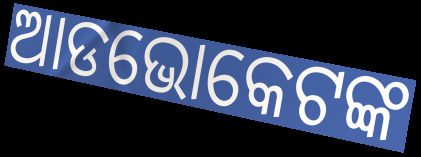
ଆଡଭୋକେଟଙ୍କ